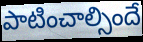
పాటించాల్సిందే